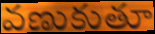
వణుకుతూ